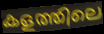
കളത്തിലെ